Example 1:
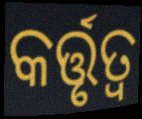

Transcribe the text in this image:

କର୍ତ୍ତୃତ୍ଵ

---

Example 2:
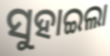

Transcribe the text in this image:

ସୁହାଇଲା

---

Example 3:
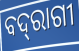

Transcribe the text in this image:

ବଦ୍‌ରାଗୀ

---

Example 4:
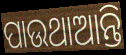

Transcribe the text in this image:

ପାଉଥାଆନ୍ତି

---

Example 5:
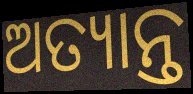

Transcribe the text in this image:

ଅତ୍ୟାନ୍ତ